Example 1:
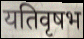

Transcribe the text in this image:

यतिवृषभ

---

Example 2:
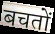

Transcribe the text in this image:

बचतों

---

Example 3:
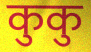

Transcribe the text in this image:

कुकु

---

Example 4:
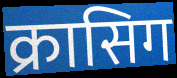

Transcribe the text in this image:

क्रासिग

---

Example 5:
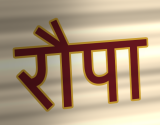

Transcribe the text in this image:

रौपा